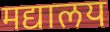
मद्यालय